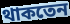
থাকতেন